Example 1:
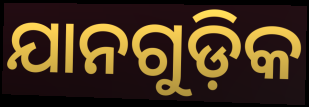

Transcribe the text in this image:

ଯାନଗୁଡ଼ିକ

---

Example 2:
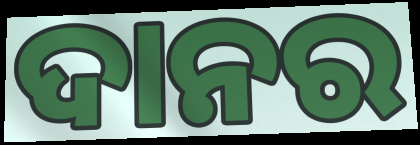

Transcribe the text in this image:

ଦାନର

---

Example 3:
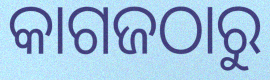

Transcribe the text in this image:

କାଗଜଠାରୁ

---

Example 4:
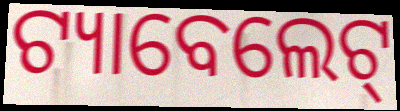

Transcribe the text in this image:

ଟ୍ୟାବେଲେଟ୍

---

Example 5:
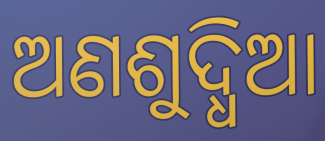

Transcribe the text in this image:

ଅଣଶୁଦ୍ଧିଆ